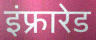
इंफ्रारेड